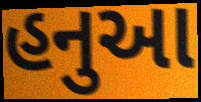
હનુઆ